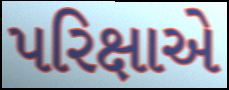
પરિક્ષાએ